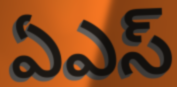
ఏఎస్